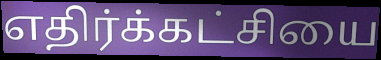
எதிர்க்கட்சியை